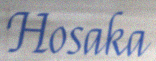
Hosaka